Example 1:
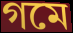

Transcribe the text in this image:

গমে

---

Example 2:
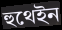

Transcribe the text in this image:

হুথেইন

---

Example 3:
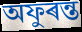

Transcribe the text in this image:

অফুৰন্ত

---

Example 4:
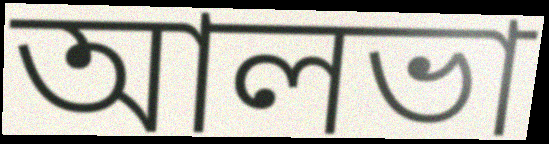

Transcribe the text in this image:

আলভা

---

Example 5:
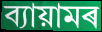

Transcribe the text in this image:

ব্যায়ামৰ